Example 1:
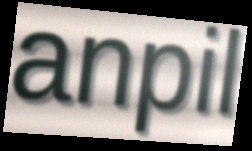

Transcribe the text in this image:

anpil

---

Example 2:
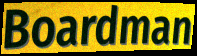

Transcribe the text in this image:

Boardman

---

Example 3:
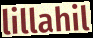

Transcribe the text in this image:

lillahil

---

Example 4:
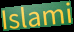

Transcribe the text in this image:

Islami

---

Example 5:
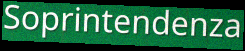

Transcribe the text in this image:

Soprintendenza